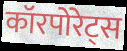
कॉरपोरेट्स